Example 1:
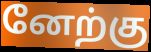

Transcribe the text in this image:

னேற்கு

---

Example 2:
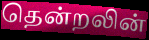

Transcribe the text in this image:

தென்றலின்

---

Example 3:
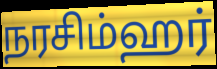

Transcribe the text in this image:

நரசிம்ஹர்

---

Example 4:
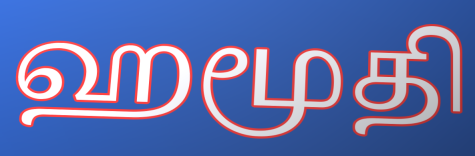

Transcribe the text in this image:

ஹமூதி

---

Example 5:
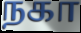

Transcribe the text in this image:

நகா